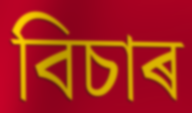
বিচাৰ